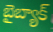
బైబ్యాక్